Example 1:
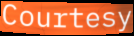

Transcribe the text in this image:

Courtesy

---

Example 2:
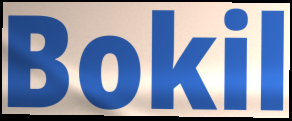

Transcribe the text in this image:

Bokil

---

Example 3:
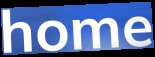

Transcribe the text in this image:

home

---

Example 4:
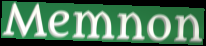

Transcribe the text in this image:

Memnon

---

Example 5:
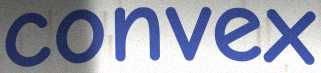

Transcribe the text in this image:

convex